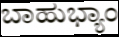
ಬಾಹುಭ್ಯಾಂ